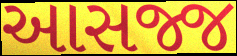
આસજ્જ